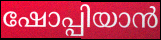
ഷോപ്പിയാൻ